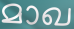
മാഖ